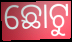
ଛୋଟୁ